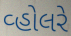
વ્હોલરે